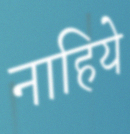
नाहिये